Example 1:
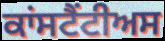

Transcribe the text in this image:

ਕਾਂਸਟੈਂਟੀਅਸ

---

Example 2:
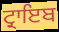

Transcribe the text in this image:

ਟ੍ਰਾਇਬ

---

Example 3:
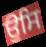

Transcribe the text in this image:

ਉਸਿ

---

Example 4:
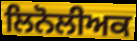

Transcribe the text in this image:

ਲਿਨੋਲੀਅਕ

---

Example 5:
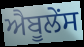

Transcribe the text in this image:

ਐਬੂਲੇਂਸ